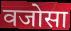
वजोसा